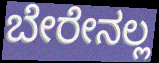
ಬೇರೇನಲ್ಲ